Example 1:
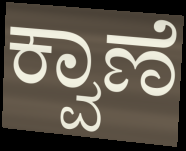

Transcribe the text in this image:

ಕ್ವಾಣೆ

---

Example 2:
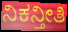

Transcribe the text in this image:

ನಿಕನ್ತೀತಿ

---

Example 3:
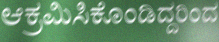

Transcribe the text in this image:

ಆಕ್ರಮಿಸಿಕೊಂಡಿದ್ದರಿಂದ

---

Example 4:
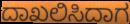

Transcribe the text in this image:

ದಾಖಲಿಸಿದಾಗ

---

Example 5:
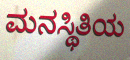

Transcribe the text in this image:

ಮನಸ್ಥಿತಿಯ